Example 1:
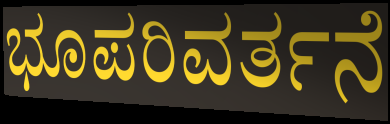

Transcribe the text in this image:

ಭೂಪರಿವರ್ತನೆ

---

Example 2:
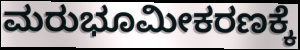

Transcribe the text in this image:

ಮರುಭೂಮೀಕರಣಕ್ಕೆ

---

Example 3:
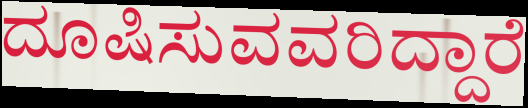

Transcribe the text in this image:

ದೂಷಿಸುವವರಿದ್ದಾರೆ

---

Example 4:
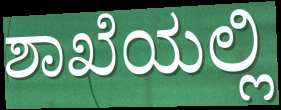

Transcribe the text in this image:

ಶಾಖೆಯಲ್ಲಿ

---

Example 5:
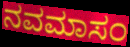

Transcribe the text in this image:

ನವಮಾಸಂ